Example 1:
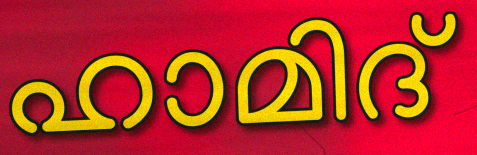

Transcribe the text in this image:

ഹാമിദ്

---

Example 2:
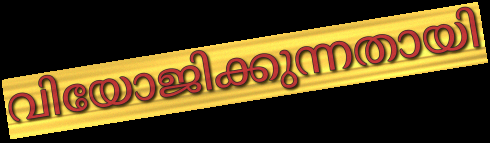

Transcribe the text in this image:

വിയോജിക്കുന്നതായി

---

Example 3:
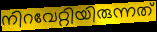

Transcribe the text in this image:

നിറവേറ്റിയിരുന്നത്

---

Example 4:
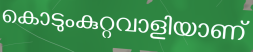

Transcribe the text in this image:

കൊടുംകുറ്റവാളിയാണ്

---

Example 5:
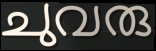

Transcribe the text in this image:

ചുവരു